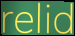
relid